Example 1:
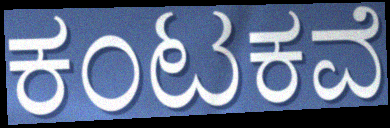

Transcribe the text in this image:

ಕಂಟಕವೆ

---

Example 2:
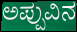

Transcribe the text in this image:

ಅಪ್ಪುವಿನ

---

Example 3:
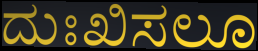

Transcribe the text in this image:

ದುಃಖಿಸಲೂ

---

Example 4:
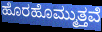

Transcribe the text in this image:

ಹೊರಹೊಮ್ಮುತ್ತವೆ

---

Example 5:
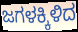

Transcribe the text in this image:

ಜಗಳಕ್ಕಿಳಿದ